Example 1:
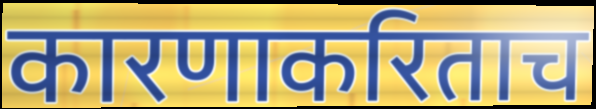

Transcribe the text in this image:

कारणाकरिताच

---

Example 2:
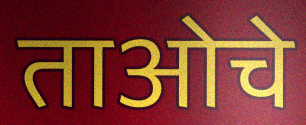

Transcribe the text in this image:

ताओचे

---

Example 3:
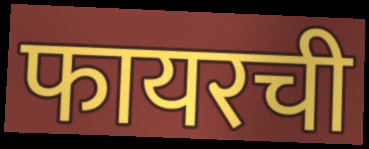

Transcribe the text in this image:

फायरची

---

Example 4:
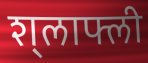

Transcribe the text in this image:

श्लाफ्ली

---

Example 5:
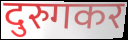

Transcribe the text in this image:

दुरुगकर